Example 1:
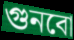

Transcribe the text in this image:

গুনবো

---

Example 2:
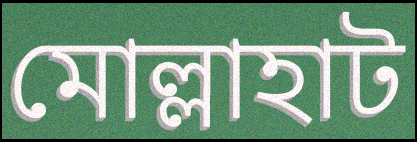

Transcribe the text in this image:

মোল্লাহাট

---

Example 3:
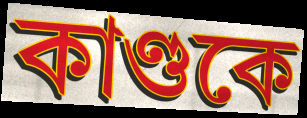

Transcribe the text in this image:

কাণ্ডকে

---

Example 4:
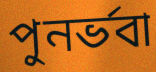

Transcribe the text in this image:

পুনর্ভবা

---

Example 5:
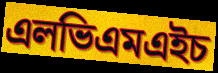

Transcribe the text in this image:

এলভিএমএইচ